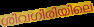
ശിവഗിരിയിലെ